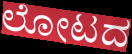
ಲೋಟದ